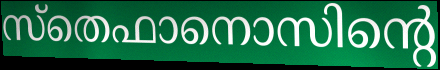
സ്തെഫാനൊസിന്റെ